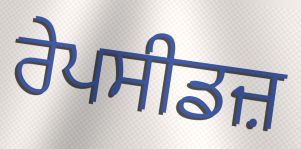
ਰੇਪਸੀਡਜ਼